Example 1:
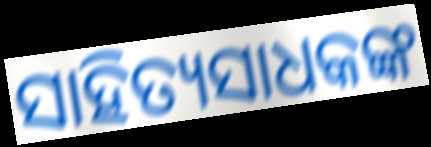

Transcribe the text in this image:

ସାହିତ୍ୟସାଧକଙ୍କ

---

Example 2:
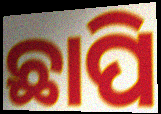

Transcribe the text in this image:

ଛାପି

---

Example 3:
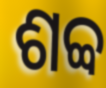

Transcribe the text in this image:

ଶବ୍ବ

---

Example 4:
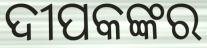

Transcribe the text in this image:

ଦୀପକଙ୍କର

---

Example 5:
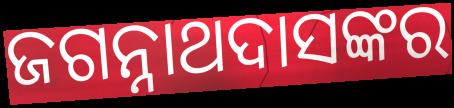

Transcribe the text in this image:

ଜଗନ୍ନାଥଦାସଙ୍କର